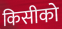
किसीको